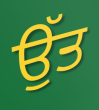
ਉੱਤ